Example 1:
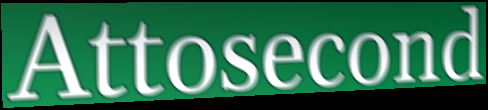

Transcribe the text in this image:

Attosecond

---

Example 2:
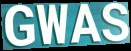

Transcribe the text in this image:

GWAS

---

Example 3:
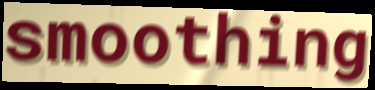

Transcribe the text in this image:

smoothing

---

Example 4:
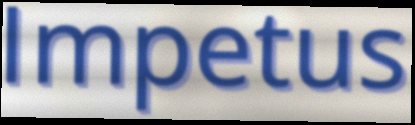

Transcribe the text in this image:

Impetus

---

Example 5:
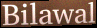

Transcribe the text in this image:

Bilawal